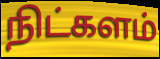
நிட்களம்